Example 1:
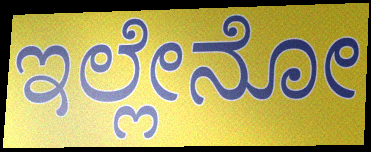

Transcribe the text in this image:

ಇಲ್ಲೇನೋ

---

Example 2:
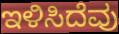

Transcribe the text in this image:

ಇಳಿಸಿದೆವು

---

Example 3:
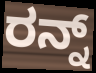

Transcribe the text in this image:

ರನ್ನ್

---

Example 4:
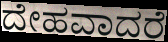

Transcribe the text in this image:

ದೇಹವಾದರೆ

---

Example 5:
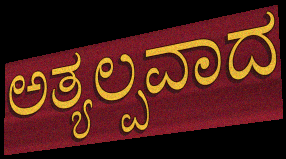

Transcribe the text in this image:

ಅತ್ಯಲ್ಪವಾದ